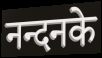
नन्दनके